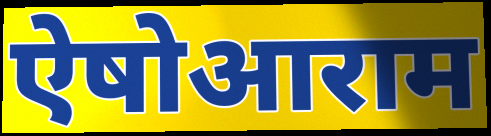
ऐषोआराम